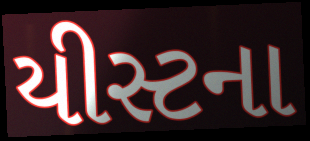
યીસ્ટના